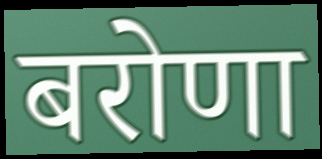
बरोणा